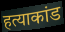
हत्याकांड